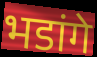
भडांगे